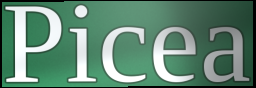
Picea